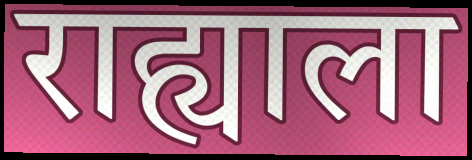
राह्याला